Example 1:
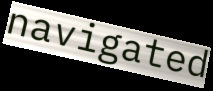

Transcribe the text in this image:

navigated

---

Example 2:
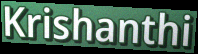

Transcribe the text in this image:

Krishanthi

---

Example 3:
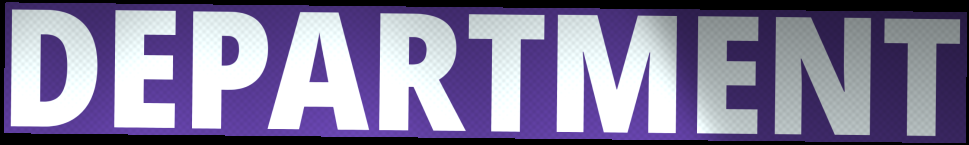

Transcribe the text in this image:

DEPARTMENT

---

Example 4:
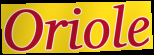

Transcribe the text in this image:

Oriole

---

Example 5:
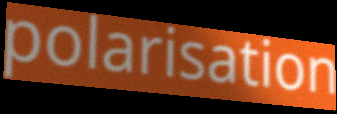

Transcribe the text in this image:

polarisation